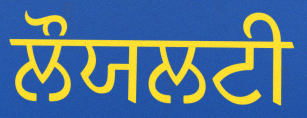
ਲੌਯਲਟੀ